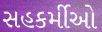
સહકર્મીઓ